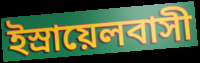
ইস্রায়েলবাসী